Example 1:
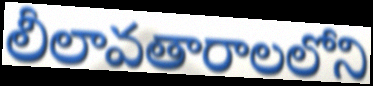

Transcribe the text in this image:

లీలావతారాలలోని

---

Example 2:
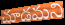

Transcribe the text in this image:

చూడమని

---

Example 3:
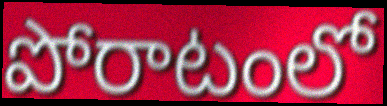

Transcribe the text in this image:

పోరాటంలో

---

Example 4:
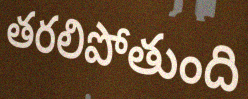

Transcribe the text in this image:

తరలిపోతుంది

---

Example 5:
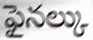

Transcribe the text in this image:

ఫైనల్కు